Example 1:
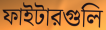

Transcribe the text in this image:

ফাইটারগুলি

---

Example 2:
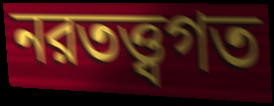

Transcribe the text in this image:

নরতত্ত্বগত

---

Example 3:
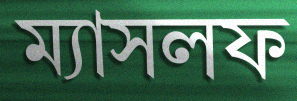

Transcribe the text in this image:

ম্যাসলফ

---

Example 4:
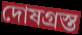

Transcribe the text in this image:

দোষগ্রস্ত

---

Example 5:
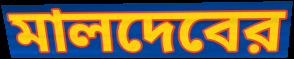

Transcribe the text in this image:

মালদেবের